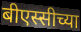
बीएस्सीच्या